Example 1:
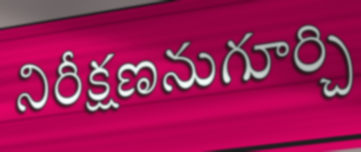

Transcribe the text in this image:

నిరీక్షణనుగూర్చి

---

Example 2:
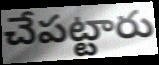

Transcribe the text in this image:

చేపట్టారు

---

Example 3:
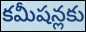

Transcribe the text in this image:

కమీషన్లకు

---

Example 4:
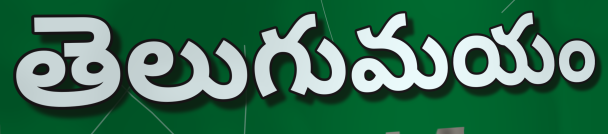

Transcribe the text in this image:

తెలుగుమయం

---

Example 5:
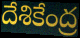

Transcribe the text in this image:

దేశికేంద్ర